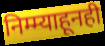
निम्म्याहूनही